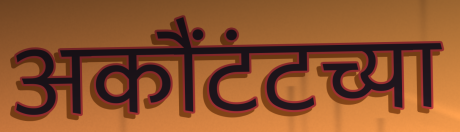
अकौंटंटच्या